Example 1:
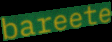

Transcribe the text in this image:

bareete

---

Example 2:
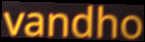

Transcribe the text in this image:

vandho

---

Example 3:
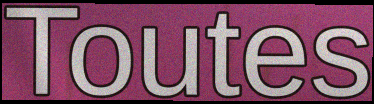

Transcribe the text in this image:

Toutes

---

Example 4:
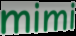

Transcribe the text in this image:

mimi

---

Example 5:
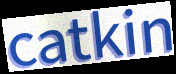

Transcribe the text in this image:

catkin